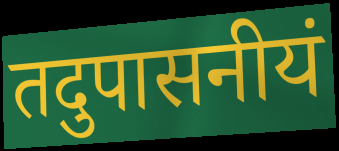
तदुपासनीयं